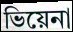
ভিয়েনা